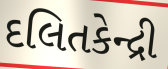
દલિતકેન્દ્રી